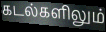
கடல்களிலும்